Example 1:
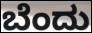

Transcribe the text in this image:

ಬೆಂದು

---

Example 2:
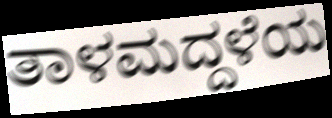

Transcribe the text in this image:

ತಾಳಮದ್ದಳೆಯ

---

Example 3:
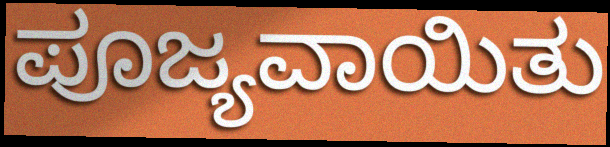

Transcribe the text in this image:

ಪೂಜ್ಯವಾಯಿತು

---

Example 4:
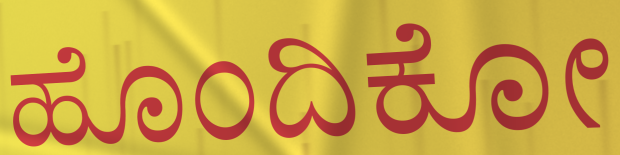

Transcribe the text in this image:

ಹೊಂದಿಕೋ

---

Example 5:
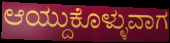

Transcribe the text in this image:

ಆಯ್ದುಕೊಳ್ಳುವಾಗ